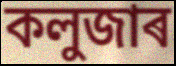
কলুজাৰ